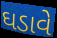
ઘડાવે